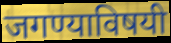
जगण्याविषयी